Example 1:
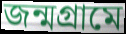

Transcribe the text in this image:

জন্মগ্রামে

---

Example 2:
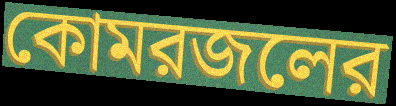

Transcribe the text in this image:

কোমরজলের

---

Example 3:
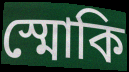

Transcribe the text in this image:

স্মোকি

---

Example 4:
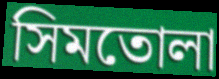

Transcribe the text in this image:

সিমতোলা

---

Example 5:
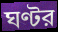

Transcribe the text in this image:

ঘণ্টর